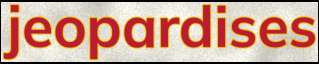
jeopardises